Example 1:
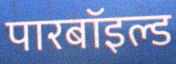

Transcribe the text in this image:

पारबॉइल्ड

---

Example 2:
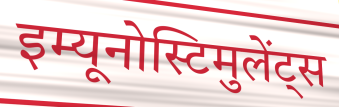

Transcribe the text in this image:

इम्यूनोस्टिमुलेंट्स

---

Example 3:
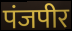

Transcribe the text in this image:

पंजपीर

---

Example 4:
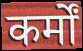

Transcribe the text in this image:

कर्मों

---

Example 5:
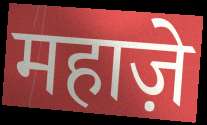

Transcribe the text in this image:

महाज़े